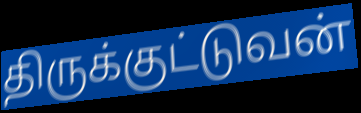
திருக்குட்டுவன்